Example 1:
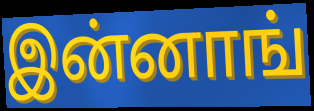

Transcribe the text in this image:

இன்னாங்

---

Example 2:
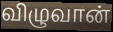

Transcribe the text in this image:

விழுவான்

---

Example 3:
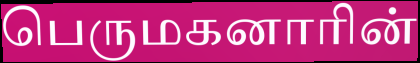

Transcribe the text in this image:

பெருமகனாரின்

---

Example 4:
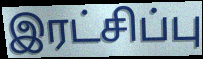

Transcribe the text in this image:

இரட்சிப்பு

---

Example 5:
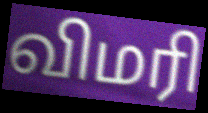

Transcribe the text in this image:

விமரி